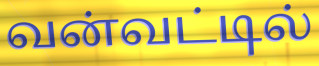
வன்வட்டில்